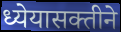
ध्येयासक्तीने